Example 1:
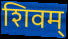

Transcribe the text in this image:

शिवम्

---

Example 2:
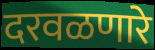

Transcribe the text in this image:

दरवळणारे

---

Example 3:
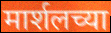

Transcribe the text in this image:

मार्शलच्या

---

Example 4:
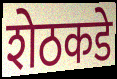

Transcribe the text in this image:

शेठकडे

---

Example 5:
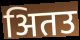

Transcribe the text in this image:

अितउ